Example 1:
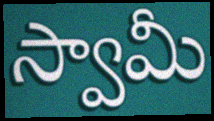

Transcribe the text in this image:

స్వామీ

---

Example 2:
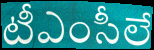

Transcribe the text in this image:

టీఎంసీలే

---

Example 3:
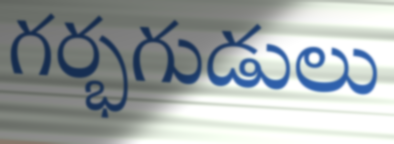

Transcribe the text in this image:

గర్భగుడులు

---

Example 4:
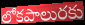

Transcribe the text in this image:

లోకపాలురకు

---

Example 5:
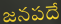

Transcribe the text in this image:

జనపదే